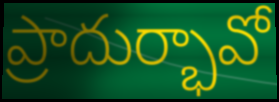
ప్రాదుర్భావో